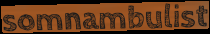
somnambulist